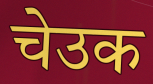
चेउक